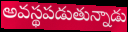
అవస్థపడుతున్నాడు